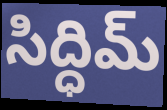
సిద్ధిమ్